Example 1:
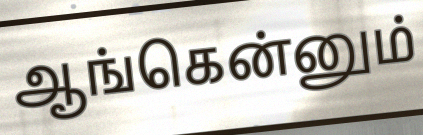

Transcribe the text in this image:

ஆங்கென்னும்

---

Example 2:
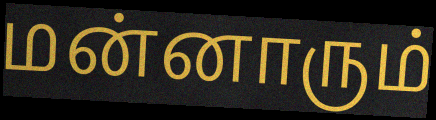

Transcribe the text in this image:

மன்னாரும்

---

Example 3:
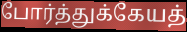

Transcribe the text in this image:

போர்த்துக்கேயத்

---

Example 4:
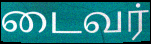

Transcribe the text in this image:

டைவர்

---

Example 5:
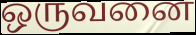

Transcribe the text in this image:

ஒருவனை